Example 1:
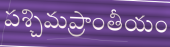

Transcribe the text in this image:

పశ్చిమప్రాంతీయం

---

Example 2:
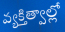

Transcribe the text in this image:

వ్యక్తిత్వాల్లో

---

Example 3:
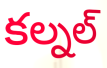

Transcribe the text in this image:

కల్నల్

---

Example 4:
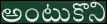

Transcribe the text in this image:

అంటుకొని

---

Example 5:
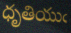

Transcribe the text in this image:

ధృతియుఁ